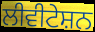
ਲੀਵੀਟੇਸ਼ਨ